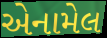
એનામેલ